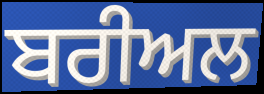
ਬਰੀਅਲ